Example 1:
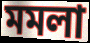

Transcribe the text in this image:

মমলা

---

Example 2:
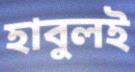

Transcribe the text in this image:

হাবুলই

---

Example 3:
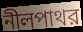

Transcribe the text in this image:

নীলপাথর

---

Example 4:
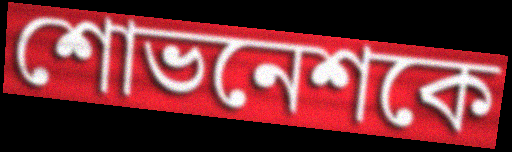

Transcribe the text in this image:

শোভনেশকে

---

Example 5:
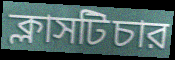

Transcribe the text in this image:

ক্লাসটিচার